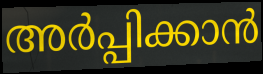
അർപ്പിക്കാൻ